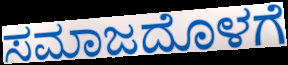
ಸಮಾಜದೊಳಗೆ